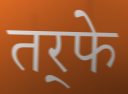
तर्फे